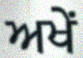
ਅਖੇਂ